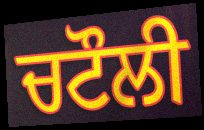
ਚਟੌਲੀ